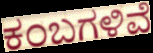
ಕಂಬಗಳಿವೆ